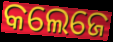
କଲେଜେ